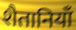
शैतानियाँ